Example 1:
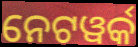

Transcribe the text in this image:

ନେଟୱର୍କ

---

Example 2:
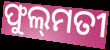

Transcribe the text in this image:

ଫୁଲ୍‍ମତୀ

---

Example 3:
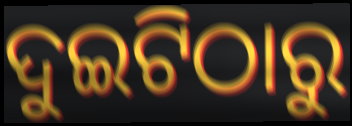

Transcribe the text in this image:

ଦୁଇଟିଠାରୁ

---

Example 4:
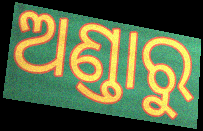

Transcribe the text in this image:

ଅଣ୍ଡାରୁ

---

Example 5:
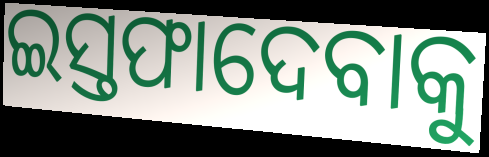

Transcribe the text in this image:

ଇସ୍ତଫାଦେବାକୁ